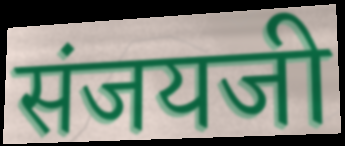
संजयजी